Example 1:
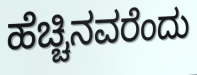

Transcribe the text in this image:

ಹೆಚ್ಚಿನವರೆಂದು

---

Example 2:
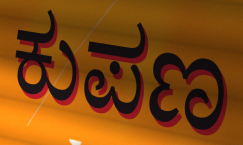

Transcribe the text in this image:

ಕುಪಣ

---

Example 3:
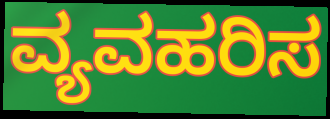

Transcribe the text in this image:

ವ್ಯವಹರಿಸ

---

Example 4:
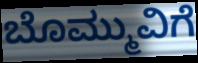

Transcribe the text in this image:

ಬೊಮ್ಮುವಿಗೆ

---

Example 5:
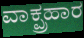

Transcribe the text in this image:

ವಾಕ್ಪ್ರಹಾರ